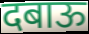
दबाऊ